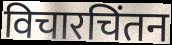
विचारचिंतन